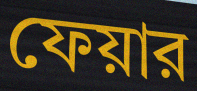
ফেয়ার